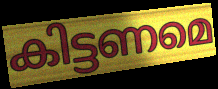
കിട്ടണമെ